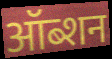
ऑब्शन